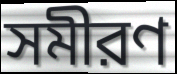
সমীরণ